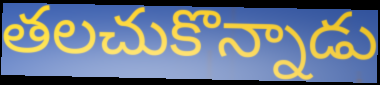
తలచుకొన్నాడు